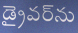
డ్రైవర్‌ను